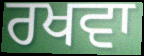
ਰਖਵਾ